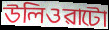
উলিওৱাটো